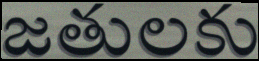
జతులకు